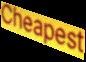
Cheapest